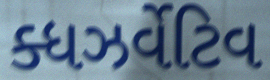
ક્ધઝર્વેટિવ